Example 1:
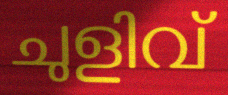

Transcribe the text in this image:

ചുളിവ്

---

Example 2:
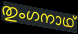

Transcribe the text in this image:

തുംഗനാഥ്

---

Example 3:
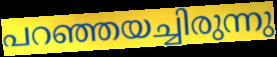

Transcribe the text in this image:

പറഞ്ഞയച്ചിരുന്നു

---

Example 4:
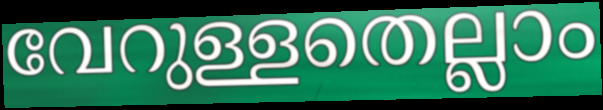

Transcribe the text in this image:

വേറുള്ളതെല്ലാം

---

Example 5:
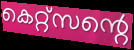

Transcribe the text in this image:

കെറ്റ്സന്റെ